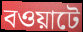
বওয়াটে